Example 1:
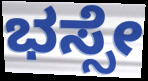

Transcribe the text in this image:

ಭಸ್ಸೇ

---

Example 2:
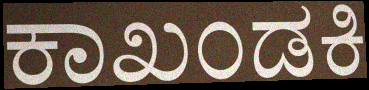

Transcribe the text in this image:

ಕಾಖಂಡಕಿ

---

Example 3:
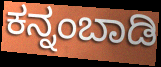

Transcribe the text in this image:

ಕನ್ನಂಬಾಡಿ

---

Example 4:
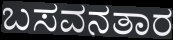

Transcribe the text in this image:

ಬಸವನತಾರ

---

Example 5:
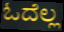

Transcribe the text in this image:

ಓದೆಲ್ಲ